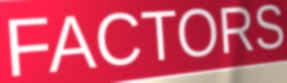
FACTORS